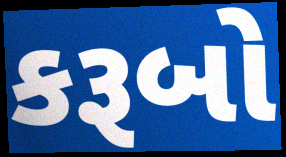
કરૂબો